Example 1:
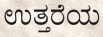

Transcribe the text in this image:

ಉತ್ತರೆಯ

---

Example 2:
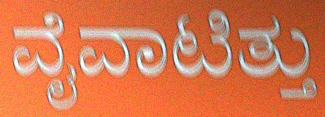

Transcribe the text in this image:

ವೈವಾಟಿತ್ತು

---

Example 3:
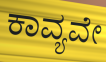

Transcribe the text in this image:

ಕಾವ್ಯವೇ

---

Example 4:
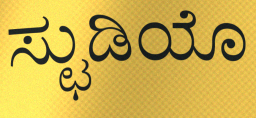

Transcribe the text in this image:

ಸ್ಟುಡಿಯೊ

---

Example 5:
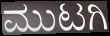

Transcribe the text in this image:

ಮುಟಗಿ